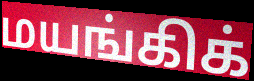
மயங்கிக்